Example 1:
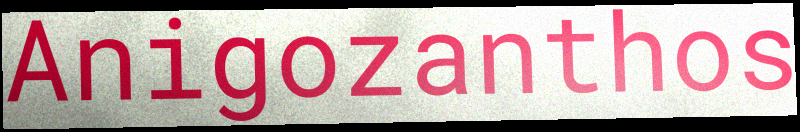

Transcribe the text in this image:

Anigozanthos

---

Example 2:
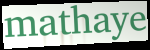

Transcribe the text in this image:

mathaye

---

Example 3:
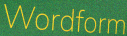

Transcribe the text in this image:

Wordform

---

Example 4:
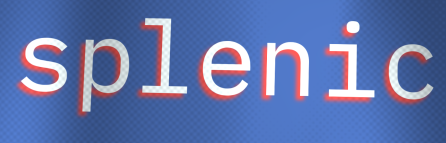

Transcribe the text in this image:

splenic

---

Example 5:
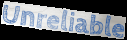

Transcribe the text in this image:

Unreliable